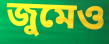
জুমেও